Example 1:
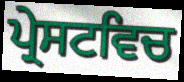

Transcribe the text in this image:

ਪ੍ਰੇਸਟਵਿਚ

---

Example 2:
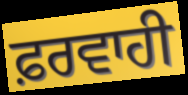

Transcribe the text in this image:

ਫ਼ਰਵਾਹੀ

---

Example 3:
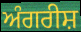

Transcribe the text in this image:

ਅੰਗਰੀਸ਼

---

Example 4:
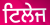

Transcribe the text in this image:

ਟਿਲੇਜ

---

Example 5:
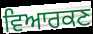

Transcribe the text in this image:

ਵਿਆਰਕਣ